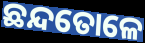
ଛନ୍ଦତୋଳେ